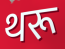
थरू